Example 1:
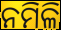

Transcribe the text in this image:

ନମିଳି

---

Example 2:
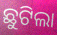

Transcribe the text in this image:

ଛୁଟିଲା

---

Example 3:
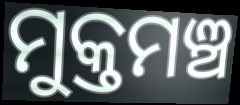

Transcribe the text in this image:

ମୁକ୍ତମଞ୍ଚ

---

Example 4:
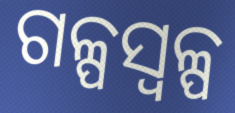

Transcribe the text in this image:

ଗଳ୍ପସ୍ୱଳ୍ପ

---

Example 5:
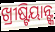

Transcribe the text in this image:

ଖ୍ରୀଷ୍ଟିୟାନ୍ଙ୍କ